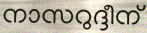
നാസറുദ്ദീന്